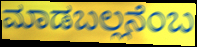
ಮಾಡಬಲ್ಲನೆಂಬ